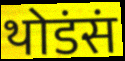
थोडंसं